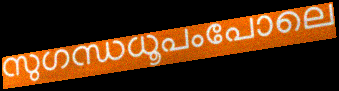
സുഗന്ധധൂപംപോലെ